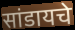
सांडायचे